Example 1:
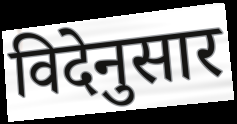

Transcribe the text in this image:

विदेनुसार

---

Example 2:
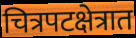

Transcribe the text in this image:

चित्रपटक्षेत्रात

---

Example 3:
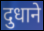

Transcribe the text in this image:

दुधाने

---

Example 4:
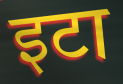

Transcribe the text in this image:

इटा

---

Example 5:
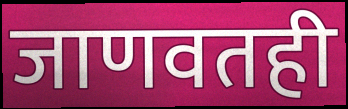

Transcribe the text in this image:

जाणवतही